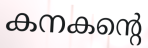
കനകന്റെ